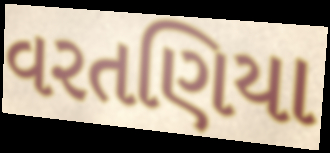
વરતણિયા